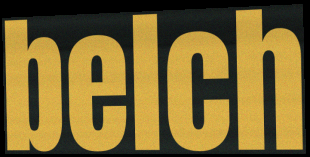
belch